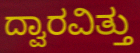
ದ್ವಾರವಿತ್ತು